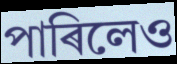
পাৰিলেও